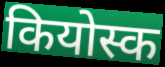
कियोस्क